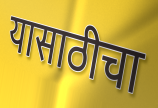
यासाठीचा